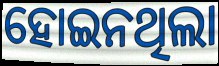
ହୋଇନଥିଲା